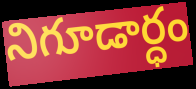
నిగూడార్ధం